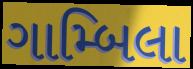
ગામ્બિલા